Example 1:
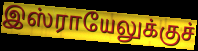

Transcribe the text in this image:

இஸ்ராயேலுக்குச்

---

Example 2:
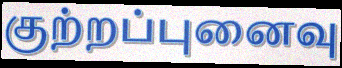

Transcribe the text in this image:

குற்றப்புனைவு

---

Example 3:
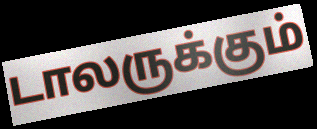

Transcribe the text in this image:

டாலருக்கும்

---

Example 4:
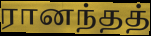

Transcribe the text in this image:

ரானந்தத்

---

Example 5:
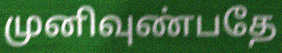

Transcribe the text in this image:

முனிவுண்பதே